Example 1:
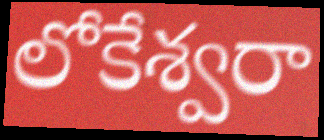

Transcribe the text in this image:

లోకేశ్వరా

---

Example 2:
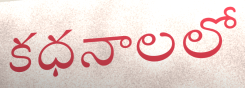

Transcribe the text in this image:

కధనాలలో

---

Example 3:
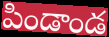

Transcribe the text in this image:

పిండాండ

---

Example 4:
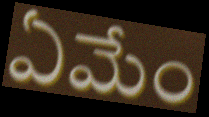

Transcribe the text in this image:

ఏమేం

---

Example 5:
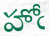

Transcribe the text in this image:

హోఁ